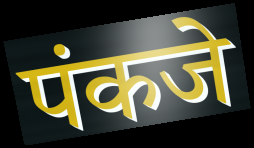
पंकजे